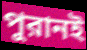
পুরানই